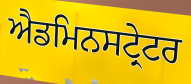
ਐਡਮਿਨਸਟ੍ਰੇਟਰ